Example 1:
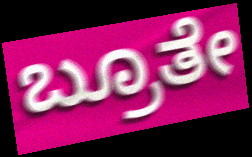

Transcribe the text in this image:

ಬ್ರೂತೇ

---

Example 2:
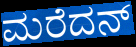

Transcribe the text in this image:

ಮರೆದನ್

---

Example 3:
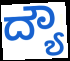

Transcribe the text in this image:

ದ್ಯೌ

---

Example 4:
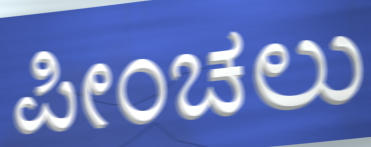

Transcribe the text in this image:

ಪೀಂಚಲು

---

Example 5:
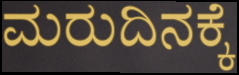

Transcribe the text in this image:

ಮರುದಿನಕ್ಕೆ